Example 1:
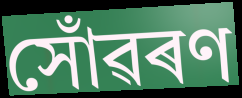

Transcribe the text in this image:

সোঁৱৰণ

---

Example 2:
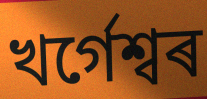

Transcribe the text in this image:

খৰ্গেশ্বৰ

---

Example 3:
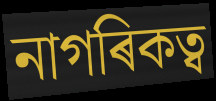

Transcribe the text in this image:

নাগৰিকত্ব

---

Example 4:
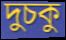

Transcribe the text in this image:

দুচকু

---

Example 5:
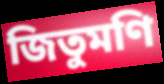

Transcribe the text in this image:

জিতুমণি